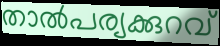
താൽപര്യക്കുറവ്